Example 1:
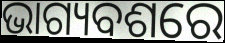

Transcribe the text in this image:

ଭାଗ୍ୟବଶରେ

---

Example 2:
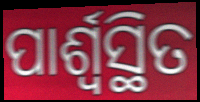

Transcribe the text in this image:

ପାର୍ଶ୍ୱସ୍ଥିତ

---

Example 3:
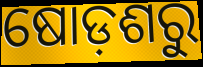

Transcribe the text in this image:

ଷୋଡ଼ଶରୁ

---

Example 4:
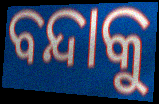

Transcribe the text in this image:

ବନ୍ଦାକୁ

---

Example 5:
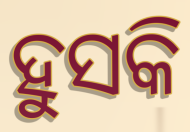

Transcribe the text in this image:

ହୁସକି